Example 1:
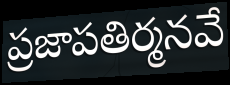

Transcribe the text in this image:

ప్రజాపతిర్మనవే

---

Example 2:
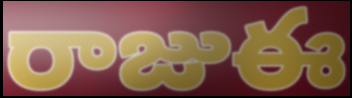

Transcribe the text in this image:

రాజుఈ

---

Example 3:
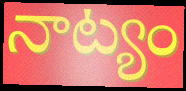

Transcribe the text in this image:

నాట్యం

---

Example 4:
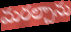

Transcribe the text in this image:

మరల్చాను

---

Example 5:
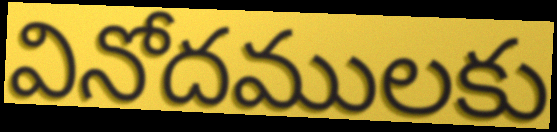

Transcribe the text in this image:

వినోదములకు